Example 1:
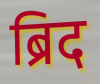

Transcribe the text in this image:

ब्रिद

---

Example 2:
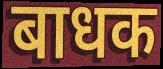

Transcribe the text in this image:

बाधक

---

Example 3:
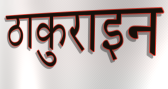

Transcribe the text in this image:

ठाकुराइन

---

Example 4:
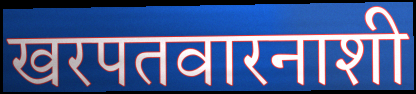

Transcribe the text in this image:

खरपतवारनाशी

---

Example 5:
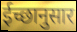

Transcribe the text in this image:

ईच्छानुसार